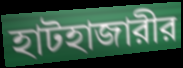
হাটহাজারীর